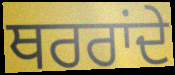
ਥਰਰਾਂਦੇ